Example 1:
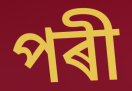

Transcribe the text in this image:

পৰী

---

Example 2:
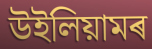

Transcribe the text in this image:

উইলিয়ামৰ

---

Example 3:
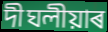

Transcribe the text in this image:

দীঘলীয়াৰ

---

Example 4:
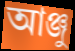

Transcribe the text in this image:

আঞ্জু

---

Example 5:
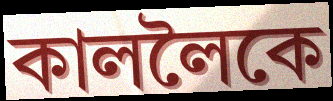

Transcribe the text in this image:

কাললৈকে